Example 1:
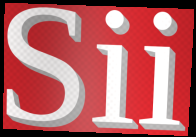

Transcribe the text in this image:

Sii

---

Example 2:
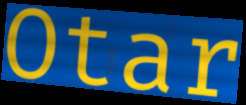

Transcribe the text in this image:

Otar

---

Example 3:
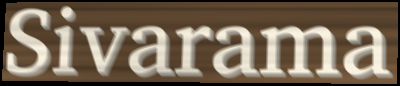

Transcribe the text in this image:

Sivarama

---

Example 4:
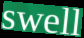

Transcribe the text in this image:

swell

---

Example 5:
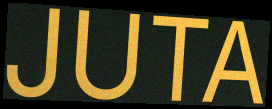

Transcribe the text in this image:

JUTA